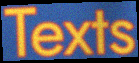
Texts